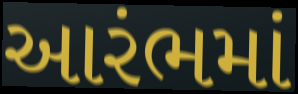
આરંભમાં